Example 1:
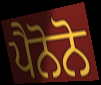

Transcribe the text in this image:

ਪੈਨੋਨੋ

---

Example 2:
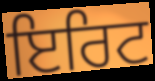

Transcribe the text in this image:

ਇਰਿਟ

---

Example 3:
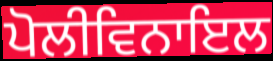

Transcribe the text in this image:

ਪੋਲੀਵਿਨਾਇਲ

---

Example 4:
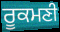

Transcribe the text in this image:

ਰੂਕਮਣੀ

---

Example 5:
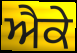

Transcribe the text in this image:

ਐਕੇ